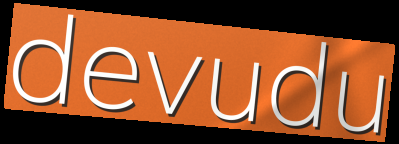
devudu